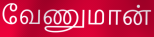
வேணுமான்